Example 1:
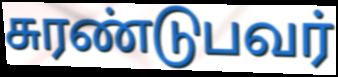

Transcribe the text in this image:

சுரண்டுபவர்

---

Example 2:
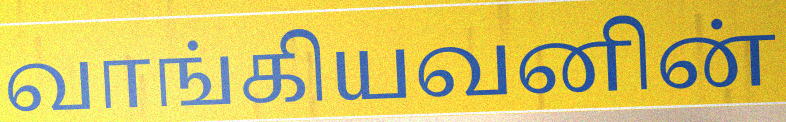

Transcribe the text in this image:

வாங்கியவனின்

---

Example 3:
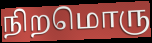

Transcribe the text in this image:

நிறமொரு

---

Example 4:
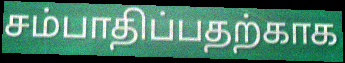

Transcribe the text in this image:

சம்பாதிப்பதற்காக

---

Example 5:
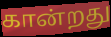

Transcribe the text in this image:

கான்றது